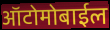
ऑटोमोबाईल